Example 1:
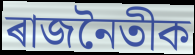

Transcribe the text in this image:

ৰাজনৈতীক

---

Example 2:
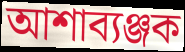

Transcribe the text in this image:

আশাব্যঞ্জক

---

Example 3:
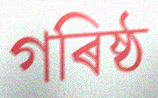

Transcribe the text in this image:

গৰিষ্ঠ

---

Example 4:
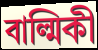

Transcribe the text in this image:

বাল্মিকী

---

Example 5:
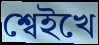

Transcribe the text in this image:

শ্বেইখে